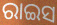
ରାଇସ